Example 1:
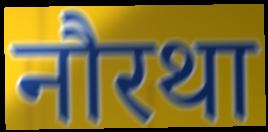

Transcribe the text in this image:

नौरथा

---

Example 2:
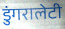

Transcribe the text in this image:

डुंगरालेटी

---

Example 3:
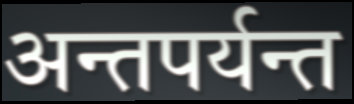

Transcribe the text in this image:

अन्तपर्यन्त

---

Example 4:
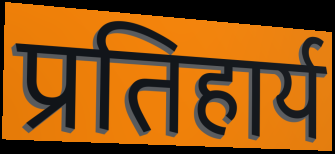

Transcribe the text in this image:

प्रतिहार्य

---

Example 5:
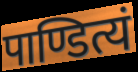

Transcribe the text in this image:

पाण्डित्यं